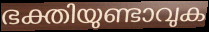
ഭക്തിയുണ്ടാവുക